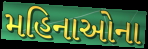
મહિનાઓના